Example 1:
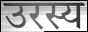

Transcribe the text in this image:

उरस्य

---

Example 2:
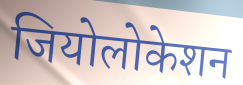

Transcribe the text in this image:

जियोलोकेशन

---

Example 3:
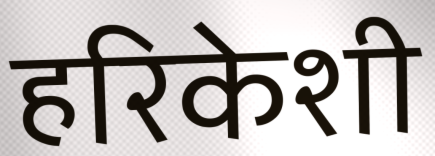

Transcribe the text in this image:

हरिकेशी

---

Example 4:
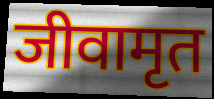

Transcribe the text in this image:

जीवामृत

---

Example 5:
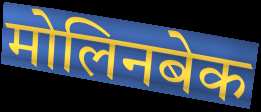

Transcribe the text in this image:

मोलिनबेक